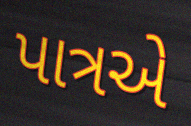
પાત્રએ